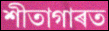
শীতাগাৰত